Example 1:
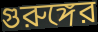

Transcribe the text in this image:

গুরুঙ্গের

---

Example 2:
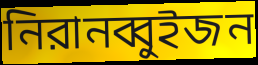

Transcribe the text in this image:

নিরানব্বুইজন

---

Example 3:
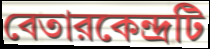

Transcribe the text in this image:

বেতারকেন্দ্রটি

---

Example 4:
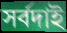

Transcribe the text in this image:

সর্বদাই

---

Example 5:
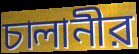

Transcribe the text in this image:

চালানীর